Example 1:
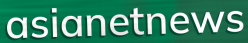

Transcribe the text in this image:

asianetnews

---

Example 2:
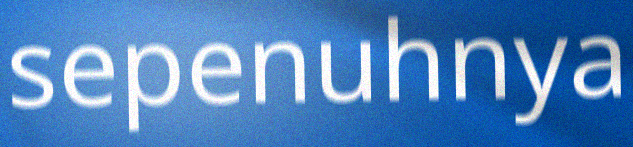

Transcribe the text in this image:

sepenuhnya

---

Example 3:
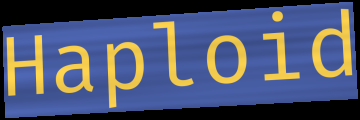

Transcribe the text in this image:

Haploid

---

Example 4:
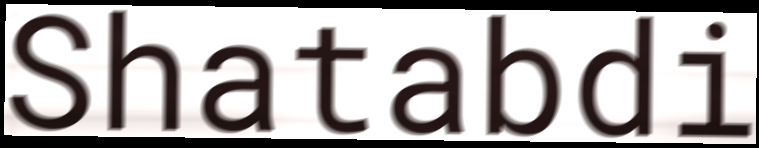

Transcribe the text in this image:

Shatabdi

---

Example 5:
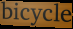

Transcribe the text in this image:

bicycle